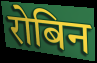
रोबिन